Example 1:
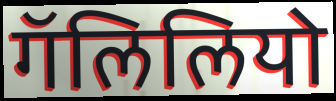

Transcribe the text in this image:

गॅलिलियो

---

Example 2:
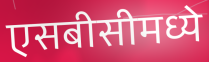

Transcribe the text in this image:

एसबीसीमध्ये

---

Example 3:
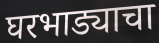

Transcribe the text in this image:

घरभाड्याचा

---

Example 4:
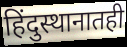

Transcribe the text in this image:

हिंदुस्थानातही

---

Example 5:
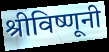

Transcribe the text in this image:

श्रीविष्णूनी